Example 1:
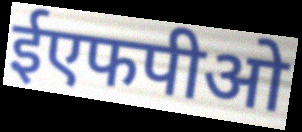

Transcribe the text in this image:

ईएफपीओ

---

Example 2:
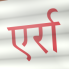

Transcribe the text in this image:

एर्रा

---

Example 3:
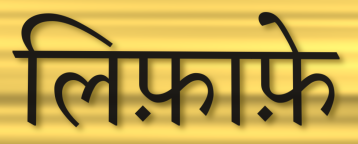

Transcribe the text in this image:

लिफ़ाफ़े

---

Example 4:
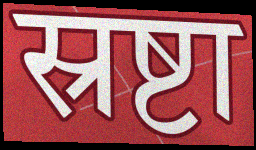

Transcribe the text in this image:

स्रष्टा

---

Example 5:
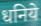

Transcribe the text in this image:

धनिये